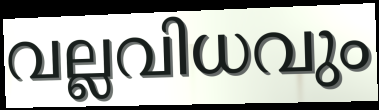
വല്ലവിധവും